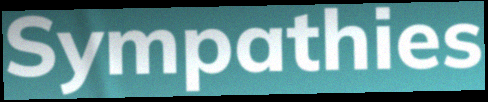
Sympathies